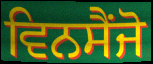
ਵਿਨਸੈਂਜੋ